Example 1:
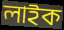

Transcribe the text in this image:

লাইক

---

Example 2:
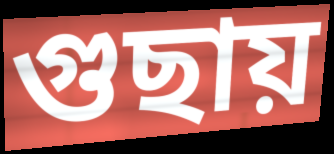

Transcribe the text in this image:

গুছায়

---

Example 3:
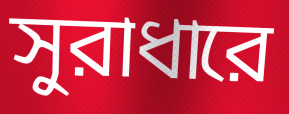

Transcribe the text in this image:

সুরাধারে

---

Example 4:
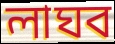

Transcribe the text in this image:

লাঘব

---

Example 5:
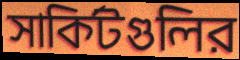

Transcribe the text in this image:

সার্কিটগুলির